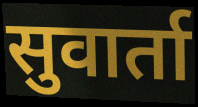
सुवार्ता